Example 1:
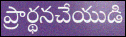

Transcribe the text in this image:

ప్రార్థనచేయుడి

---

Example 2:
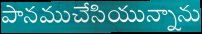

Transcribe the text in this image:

పానముచేసియున్నాను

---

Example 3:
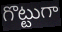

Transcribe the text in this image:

గొట్టుగా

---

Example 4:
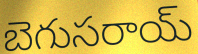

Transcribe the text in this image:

బెగుసరాయ్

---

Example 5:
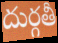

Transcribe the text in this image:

దుర్గతీ